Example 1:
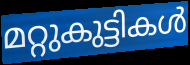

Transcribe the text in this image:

മറ്റുകുട്ടികൾ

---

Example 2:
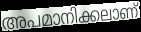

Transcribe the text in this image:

അപമാനിക്കലാണ്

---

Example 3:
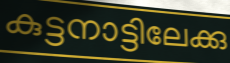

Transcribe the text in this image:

കുട്ടനാട്ടിലേക്കു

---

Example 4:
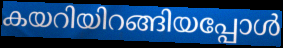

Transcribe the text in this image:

കയറിയിറങ്ങിയപ്പോൾ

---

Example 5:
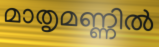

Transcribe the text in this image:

മാതൃമണ്ണിൽ